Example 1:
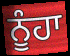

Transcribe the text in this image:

ਨੂੰਹਾ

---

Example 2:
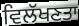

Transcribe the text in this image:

ਵਿਲੱਖਣਤਾ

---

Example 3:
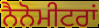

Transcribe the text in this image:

ਨੈਨੋਮੀਟਰਾਂ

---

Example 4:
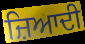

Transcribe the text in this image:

ਜ਼ਿਆਦੀ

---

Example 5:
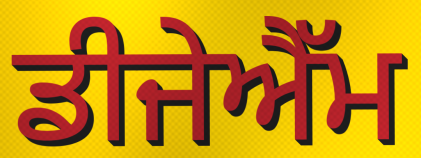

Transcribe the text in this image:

ਡੀਜੇਐੱਮ